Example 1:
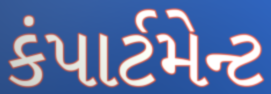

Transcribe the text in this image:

કંપાર્ટમેન્ટ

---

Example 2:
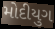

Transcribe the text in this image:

મોદીયુગ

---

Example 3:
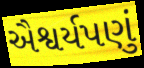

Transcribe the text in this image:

ઐશ્વર્યપણું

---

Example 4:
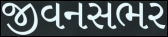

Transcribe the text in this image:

જીવનસભર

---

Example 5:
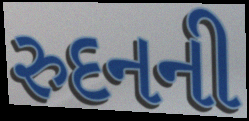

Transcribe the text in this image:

રુદનની